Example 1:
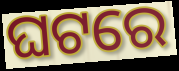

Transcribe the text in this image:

ଘଟରେ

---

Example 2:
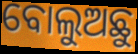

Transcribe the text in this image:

ବୋଲୁଅଛୁ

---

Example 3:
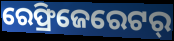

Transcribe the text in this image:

ରେଫ୍ରିଜେରେଟର୍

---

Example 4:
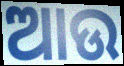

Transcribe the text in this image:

ଆଉ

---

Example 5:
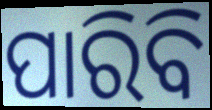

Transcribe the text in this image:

ପାରିବି